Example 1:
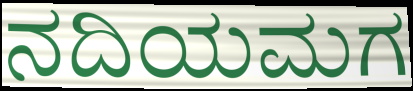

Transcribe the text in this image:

ನದಿಯಮಗ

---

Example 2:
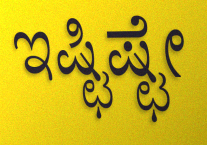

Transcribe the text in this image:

ಇಷ್ಟಿಷ್ಟೇ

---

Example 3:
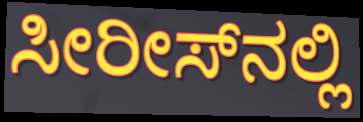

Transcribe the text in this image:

ಸೀರೀಸ್‌ನಲ್ಲಿ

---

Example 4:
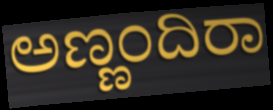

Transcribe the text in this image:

ಅಣ್ಣಂದಿರಾ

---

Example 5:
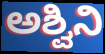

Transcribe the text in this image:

ಅಶ್ವಿನಿ